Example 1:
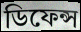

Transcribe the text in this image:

ডিফেন্স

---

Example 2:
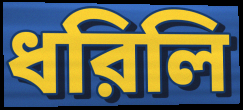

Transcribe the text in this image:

ধরিলি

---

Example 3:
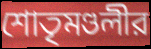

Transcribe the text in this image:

শোতৃমণ্ডলীর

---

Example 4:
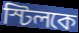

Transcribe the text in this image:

স্টিলকে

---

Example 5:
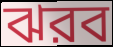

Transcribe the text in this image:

ঝরব